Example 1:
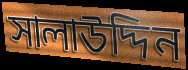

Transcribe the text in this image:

সালাউদ্দিন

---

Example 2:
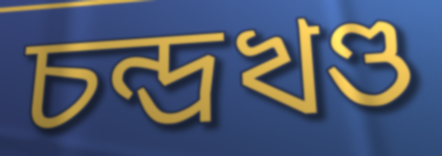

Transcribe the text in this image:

চন্দ্রখণ্ড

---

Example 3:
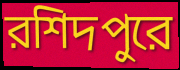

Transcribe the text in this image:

রশিদপুরে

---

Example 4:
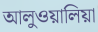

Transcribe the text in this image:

আলুওয়ালিয়া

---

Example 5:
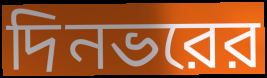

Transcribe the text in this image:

দিনভরের